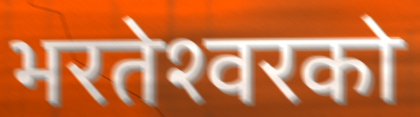
भरतेश्वरको